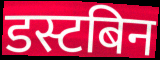
डस्टबिन